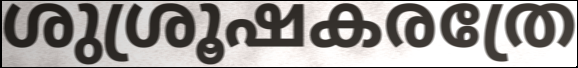
ശുശ്രൂഷകരത്രേ